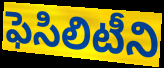
ఫెసిలిటీని